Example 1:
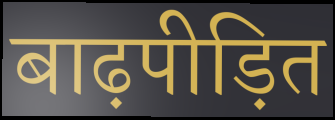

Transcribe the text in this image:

बाढ़पीड़ित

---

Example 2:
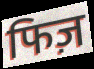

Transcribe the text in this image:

फिज़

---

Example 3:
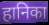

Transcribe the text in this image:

हानिका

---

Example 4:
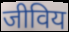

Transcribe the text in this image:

जीविय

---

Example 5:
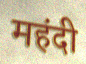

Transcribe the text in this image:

महंदी